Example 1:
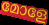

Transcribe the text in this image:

മോളേ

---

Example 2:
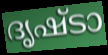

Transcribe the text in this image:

ദൃഷ്ടാ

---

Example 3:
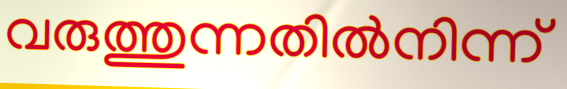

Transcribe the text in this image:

വരുത്തുന്നതിൽനിന്ന്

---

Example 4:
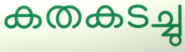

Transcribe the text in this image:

കതകടച്ചു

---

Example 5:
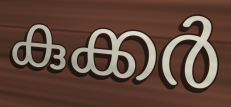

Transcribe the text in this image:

കുക്കർ